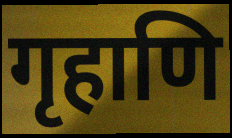
गृहाणि